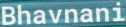
Bhavnani